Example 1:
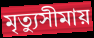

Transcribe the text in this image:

মৃত্যুসীমায়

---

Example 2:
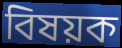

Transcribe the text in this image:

বিষয়ক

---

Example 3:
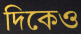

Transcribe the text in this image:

দিকেও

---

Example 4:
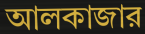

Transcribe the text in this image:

আলকাজার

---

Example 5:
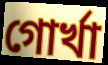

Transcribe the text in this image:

গোর্খা